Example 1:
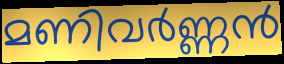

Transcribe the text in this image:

മണിവർണ്ണൻ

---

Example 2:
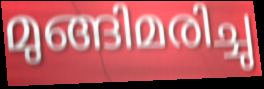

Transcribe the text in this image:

മുങ്ങിമരിച്ചു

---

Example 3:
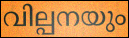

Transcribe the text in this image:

വില്പനയും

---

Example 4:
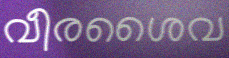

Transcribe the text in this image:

വീരശൈവ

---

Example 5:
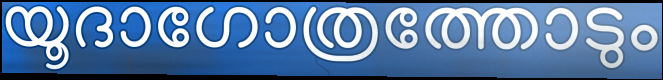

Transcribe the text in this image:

യൂദാഗോത്രത്തോടും